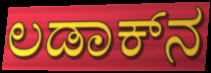
ಲಡಾಕ್‌ನ